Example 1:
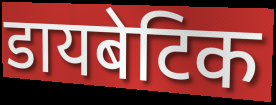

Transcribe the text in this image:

डायबेटिक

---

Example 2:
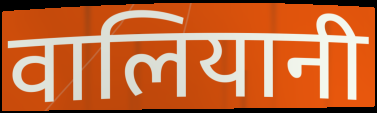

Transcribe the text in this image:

वालियानी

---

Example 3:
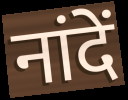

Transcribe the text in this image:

नांदें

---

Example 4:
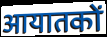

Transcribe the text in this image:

आयातकों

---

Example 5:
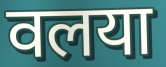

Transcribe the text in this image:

वलया